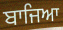
ਬਾਜਿਆ